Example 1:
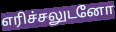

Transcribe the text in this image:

எரிச்சலுடனோ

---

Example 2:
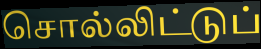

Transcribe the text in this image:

சொல்லிட்டுப்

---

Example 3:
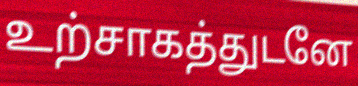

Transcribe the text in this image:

உற்சாகத்துடனே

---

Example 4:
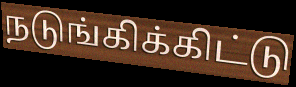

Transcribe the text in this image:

நடுங்கிக்கிட்டு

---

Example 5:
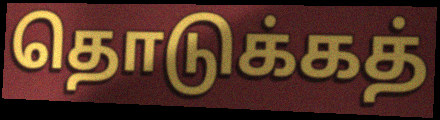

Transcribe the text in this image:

தொடுக்கத்